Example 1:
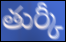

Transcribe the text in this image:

తుర్కీ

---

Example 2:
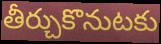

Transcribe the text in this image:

తీర్చుకొనుటకు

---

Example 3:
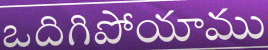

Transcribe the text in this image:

ఒదిగిపోయాము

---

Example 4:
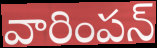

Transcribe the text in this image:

వారింపన్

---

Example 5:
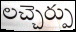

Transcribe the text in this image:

లచ్చెర్పు